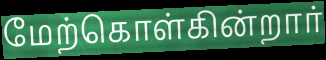
மேற்கொள்கின்றார்